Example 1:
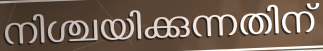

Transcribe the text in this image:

നിശ്ചയിക്കുന്നതിന്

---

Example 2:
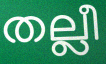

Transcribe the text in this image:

തല്ലീ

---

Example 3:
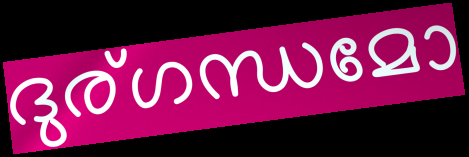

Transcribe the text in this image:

ദുര്ഗന്ധമോ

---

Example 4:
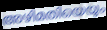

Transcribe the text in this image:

അഴിമതിയെയും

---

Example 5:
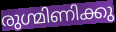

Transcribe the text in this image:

രുഗ്മിണിക്കു